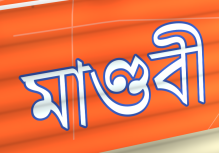
মাণ্ডবী